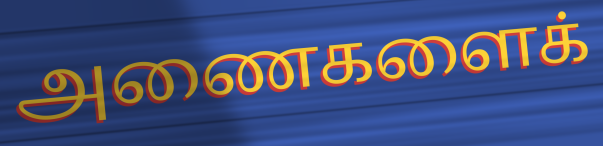
அணைகளைக்